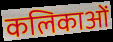
कलिकाओं